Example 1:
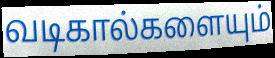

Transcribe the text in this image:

வடிகால்களையும்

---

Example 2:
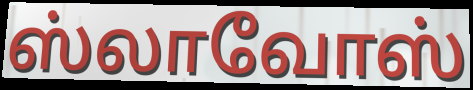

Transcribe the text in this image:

ஸ்லாவோஸ்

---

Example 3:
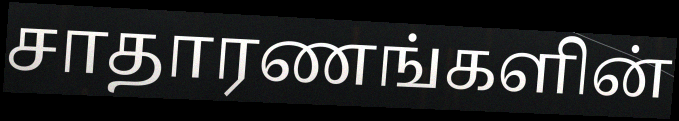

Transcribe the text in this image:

சாதாரணங்களின்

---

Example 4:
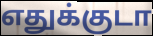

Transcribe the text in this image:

எதுக்குடா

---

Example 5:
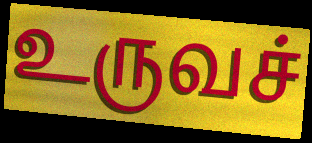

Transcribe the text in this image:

உருவச்